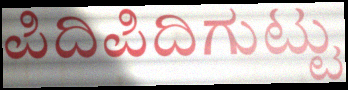
ಪಿದಿಪಿದಿಗುಟ್ಟು